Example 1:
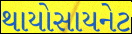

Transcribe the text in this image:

થાયોસાયનેટ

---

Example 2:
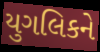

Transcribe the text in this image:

યુગલિકને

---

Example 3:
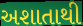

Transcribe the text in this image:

અશાતાથી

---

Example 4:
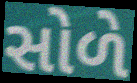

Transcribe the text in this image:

સોળે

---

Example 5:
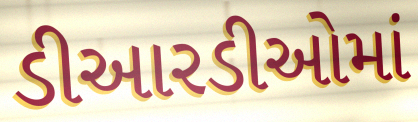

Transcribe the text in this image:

ડીઆરડીઓમાં